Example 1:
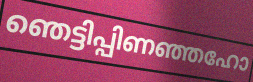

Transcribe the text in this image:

ഞെട്ടിപ്പിണഞ്ഞഹോ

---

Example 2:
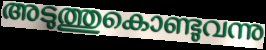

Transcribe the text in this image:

അടുത്തുകൊണ്ടുവന്നു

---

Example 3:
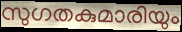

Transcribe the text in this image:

സുഗതകുമാരിയും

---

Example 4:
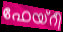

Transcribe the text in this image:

ഫേയ്റീ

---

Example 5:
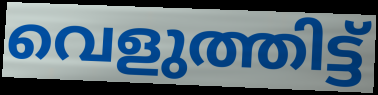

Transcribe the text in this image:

വെളുത്തിട്ട്